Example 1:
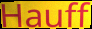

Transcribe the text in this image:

Hauff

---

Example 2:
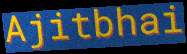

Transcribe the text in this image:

Ajitbhai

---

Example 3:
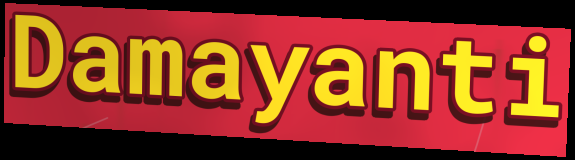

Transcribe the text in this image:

Damayanti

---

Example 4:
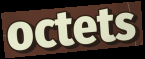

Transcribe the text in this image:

octets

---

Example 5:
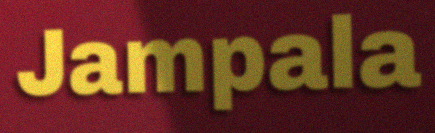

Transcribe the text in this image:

Jampala